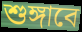
শুঙ্গাবে